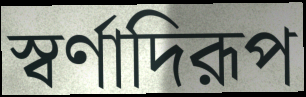
স্বর্ণাদিরূপ